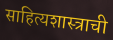
साहित्यशास्त्राची